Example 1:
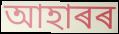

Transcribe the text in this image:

আহাৰৰ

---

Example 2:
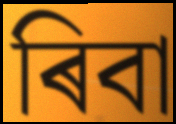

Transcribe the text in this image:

ৰিবা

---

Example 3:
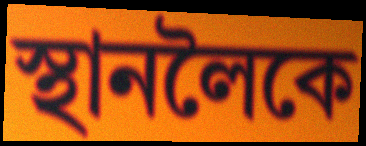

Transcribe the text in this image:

স্থানলৈকে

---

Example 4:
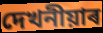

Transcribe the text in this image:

দেখনীয়াৰ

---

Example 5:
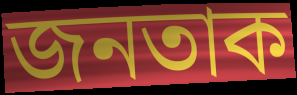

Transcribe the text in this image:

জনতাক